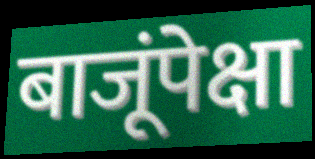
बाजूंपेक्षा